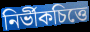
নির্ভীকচিত্তে